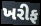
ખરીફ